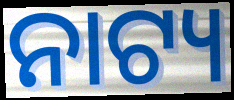
ନାଟ୍ୟ